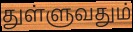
துள்ளுவதும்